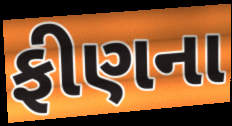
ફીણના